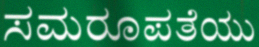
ಸಮರೂಪತೆಯು